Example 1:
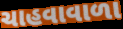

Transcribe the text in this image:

ચાહવાવાળા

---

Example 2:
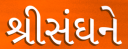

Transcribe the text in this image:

શ્રીસંઘને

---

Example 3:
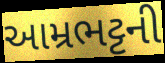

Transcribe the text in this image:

આમ્રભટ્ટની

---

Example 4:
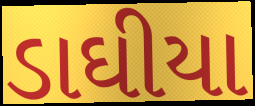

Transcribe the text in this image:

ડાઘીયા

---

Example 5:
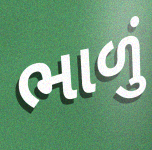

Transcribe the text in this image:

ભાળું